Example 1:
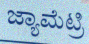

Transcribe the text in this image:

ಜ್ಯಾಮೆಟ್ರಿ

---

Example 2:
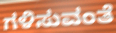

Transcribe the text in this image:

ಗಳಿಸುವಂತೆ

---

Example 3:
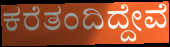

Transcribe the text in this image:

ಕರೆತಂದಿದ್ದೇವೆ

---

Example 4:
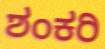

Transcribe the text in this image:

ಶಂಕರಿ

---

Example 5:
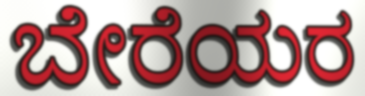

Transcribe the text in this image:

ಬೇರೆಯರ